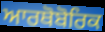
ਆਰਥੋਬੋਰਿਕ